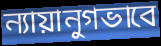
ন্যায়ানুগভাবে